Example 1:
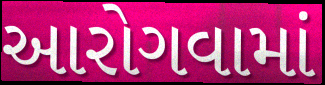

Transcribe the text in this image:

આરોગવામાં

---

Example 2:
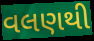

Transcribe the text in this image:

વલણથી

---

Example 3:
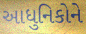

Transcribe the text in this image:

આધુનિકોને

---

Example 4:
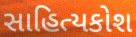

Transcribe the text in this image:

સાહિત્યકોશ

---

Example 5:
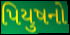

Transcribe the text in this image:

પિયુષનો